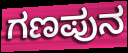
ಗಣಪುನ